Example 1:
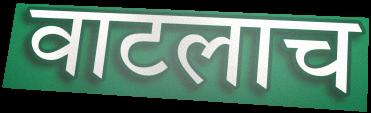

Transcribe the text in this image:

वाटलाच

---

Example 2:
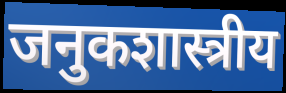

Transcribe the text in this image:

जनुकशास्त्रीय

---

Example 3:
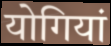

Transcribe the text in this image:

योगियां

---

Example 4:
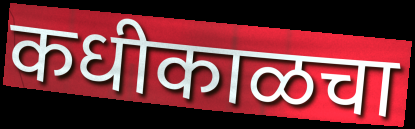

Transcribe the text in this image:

कधीकाळचा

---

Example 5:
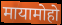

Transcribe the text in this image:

मायामोहो